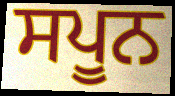
ਸਪੂਨ